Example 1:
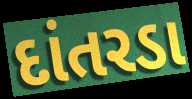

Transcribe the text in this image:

દાંતરડા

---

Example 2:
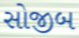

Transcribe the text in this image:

સોજીબ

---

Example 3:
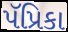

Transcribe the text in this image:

પૅપ્રિકા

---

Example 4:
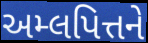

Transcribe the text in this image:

અમ્લપિત્તને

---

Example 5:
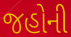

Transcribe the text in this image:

જહોની